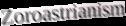
Zoroastrianism